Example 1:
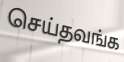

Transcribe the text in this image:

செய்தவங்க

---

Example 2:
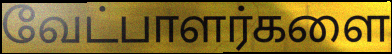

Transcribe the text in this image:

வேட்பாளர்களை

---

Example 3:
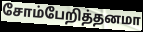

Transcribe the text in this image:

சோம்பேறித்தனமா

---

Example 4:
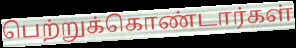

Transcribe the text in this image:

பெற்றுக்கொண்டார்கள்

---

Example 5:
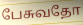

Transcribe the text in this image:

பேசுவதோ